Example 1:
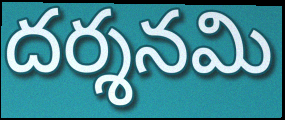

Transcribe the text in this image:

దర్శనమి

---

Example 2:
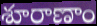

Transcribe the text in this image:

శూరాణాం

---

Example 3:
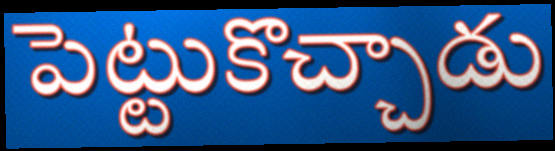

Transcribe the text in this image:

పెట్టుకొచ్చాడు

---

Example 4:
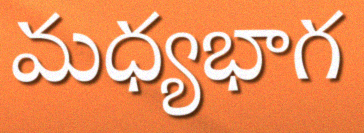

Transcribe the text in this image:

మధ్యభాగ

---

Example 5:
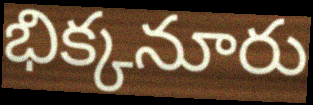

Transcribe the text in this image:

భిక్కనూరు